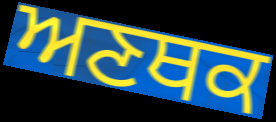
ਅਣਥਕ